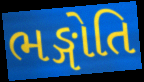
ભઙ્ગોતિ